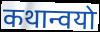
कथान्वयो